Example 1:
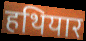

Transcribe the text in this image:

हथियार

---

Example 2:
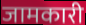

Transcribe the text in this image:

जामकारी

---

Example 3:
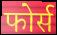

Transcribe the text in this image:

फोर्स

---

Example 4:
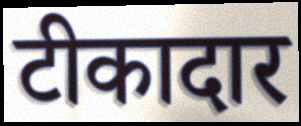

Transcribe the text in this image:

टीकादार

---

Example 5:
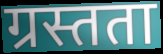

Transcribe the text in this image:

ग्रस्तता